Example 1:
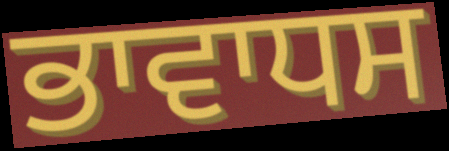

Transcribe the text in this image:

ਭਾਵਾਧਸ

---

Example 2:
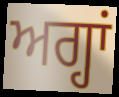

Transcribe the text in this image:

ਅਗ੍ਹਾਂ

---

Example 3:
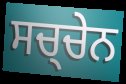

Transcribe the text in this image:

ਸਚ੍ਚੇਨ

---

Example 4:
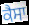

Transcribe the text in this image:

ਕੈਸਾ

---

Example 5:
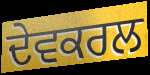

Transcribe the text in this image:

ਦੇਵਕਰਲ